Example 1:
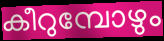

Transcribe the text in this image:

കീറുമ്പോഴും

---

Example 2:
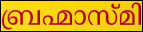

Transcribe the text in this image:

ബ്രഹ്മാസ്മി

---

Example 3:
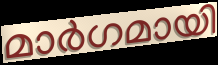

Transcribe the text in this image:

മാർഗമായി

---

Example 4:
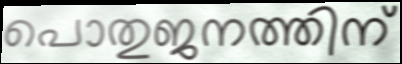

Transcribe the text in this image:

പൊതുജനത്തിന്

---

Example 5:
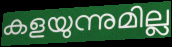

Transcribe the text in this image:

കളയുന്നുമില്ല